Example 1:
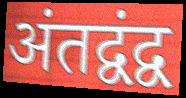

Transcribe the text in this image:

अंतद्वंद्व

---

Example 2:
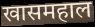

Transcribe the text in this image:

खासमहाल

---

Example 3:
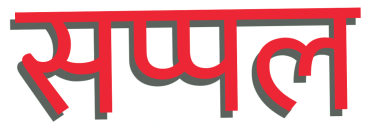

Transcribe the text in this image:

सप्पल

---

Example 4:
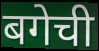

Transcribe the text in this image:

बगेची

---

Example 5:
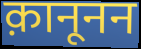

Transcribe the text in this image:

क़ानूनन